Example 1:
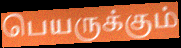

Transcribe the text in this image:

பெயருக்கும்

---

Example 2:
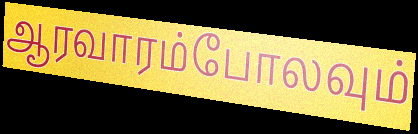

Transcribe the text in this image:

ஆரவாரம்போலவும்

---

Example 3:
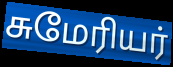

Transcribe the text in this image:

சுமேரியர்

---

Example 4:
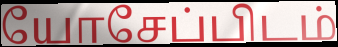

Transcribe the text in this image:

யோசேப்பிடம்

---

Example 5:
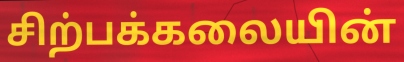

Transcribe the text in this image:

சிற்பக்கலையின்